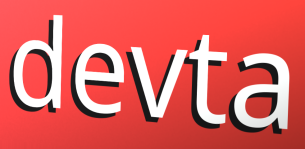
devta